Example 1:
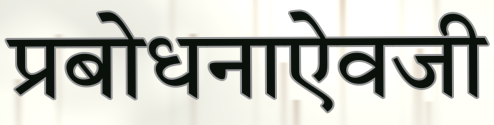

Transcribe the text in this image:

प्रबोधनाऐवजी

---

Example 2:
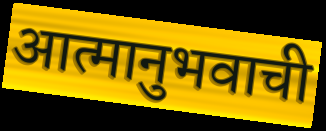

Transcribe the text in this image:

आत्मानुभवाची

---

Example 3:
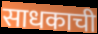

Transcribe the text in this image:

साधकाची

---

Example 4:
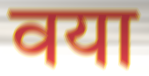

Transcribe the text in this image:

वया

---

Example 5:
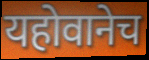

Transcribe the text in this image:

यहोवानेच